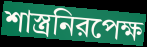
শাস্ত্রনিরপেক্ষ